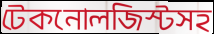
টেকনোলজিস্টসহ